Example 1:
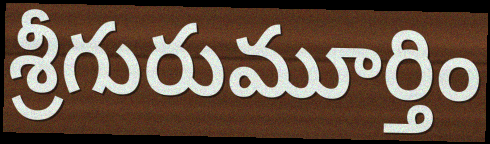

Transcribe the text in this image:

శ్రీగురుమూర్తిం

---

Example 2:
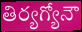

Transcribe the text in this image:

తిర్యగ్యోనౌ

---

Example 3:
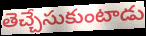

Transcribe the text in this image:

తెచ్చేసుకుంటాడు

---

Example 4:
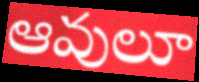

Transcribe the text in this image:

ఆవులూ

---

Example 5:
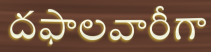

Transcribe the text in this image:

దఫాలవారీగా